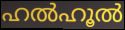
ഹൽഹൂൽ